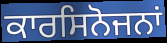
ਕਾਰਸਿਨੋਜਨਾਂ